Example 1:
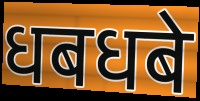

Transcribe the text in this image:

धबधबे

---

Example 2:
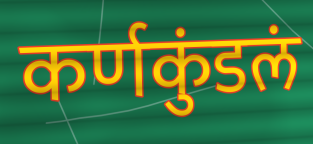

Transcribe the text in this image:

कर्णकुंडलं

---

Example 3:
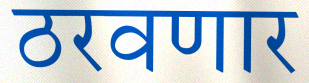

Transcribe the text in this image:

ठरवणार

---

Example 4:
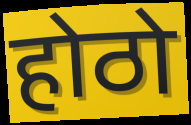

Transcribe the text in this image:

होठो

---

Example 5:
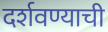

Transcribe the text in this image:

दर्शवण्याची